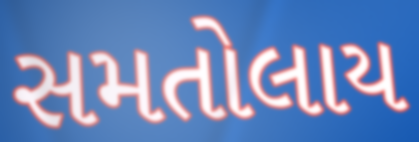
સમતોલાય